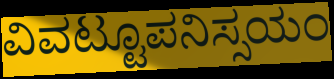
ವಿವಟ್ಟೂಪನಿಸ್ಸಯಂ